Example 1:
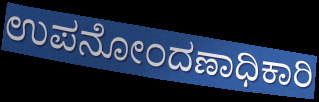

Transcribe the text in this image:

ಉಪನೋಂದಣಾಧಿಕಾರಿ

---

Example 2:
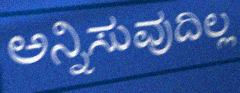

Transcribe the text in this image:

ಅನ್ನಿಸುವುದಿಲ್ಲ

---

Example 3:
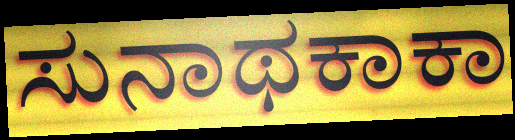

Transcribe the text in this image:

ಸುನಾಥಕಾಕಾ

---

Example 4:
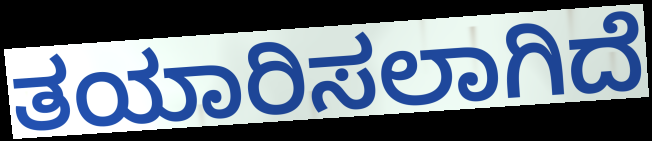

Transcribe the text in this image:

ತಯಾರಿಸಲಾಗಿದೆ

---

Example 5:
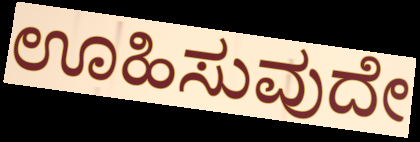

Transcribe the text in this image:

ಊಹಿಸುವುದೇ